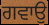
ਗਵਾਉ